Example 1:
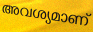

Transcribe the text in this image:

അവശ്യമാണ്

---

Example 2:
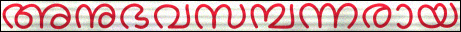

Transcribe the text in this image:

അനുഭവസമ്പന്നരായ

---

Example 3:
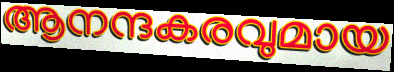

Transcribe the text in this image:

ആനന്ദകരവുമായ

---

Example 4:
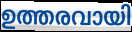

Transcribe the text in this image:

ഉത്തരവായി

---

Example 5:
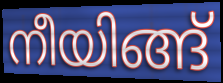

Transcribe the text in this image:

നീയിങ്ങ്